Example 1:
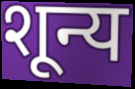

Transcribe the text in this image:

शून्य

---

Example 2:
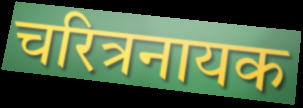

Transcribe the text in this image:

चरित्रनायक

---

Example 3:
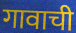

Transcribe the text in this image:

गावाची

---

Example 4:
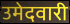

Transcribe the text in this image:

उमेदवारी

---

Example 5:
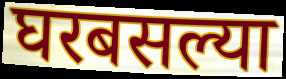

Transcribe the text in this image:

घरबसल्या